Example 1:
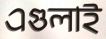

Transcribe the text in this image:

এগুলাই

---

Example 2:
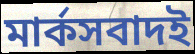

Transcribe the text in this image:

মার্কসবাদই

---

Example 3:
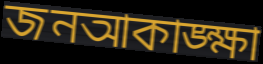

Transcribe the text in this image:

জনআকাঙ্ক্ষা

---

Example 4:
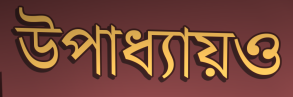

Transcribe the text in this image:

উপাধ্যায়ও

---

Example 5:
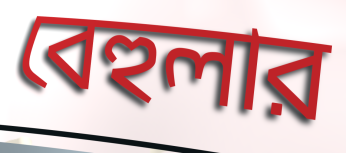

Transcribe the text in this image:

বেহুলার